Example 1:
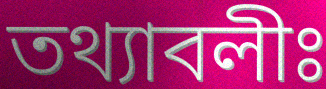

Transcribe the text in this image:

তথ্যাবলীঃ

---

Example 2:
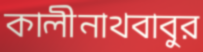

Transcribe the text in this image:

কালীনাথবাবুর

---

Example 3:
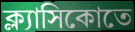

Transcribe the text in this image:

ক্ল্যাসিকোতে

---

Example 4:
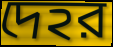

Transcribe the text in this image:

দেহর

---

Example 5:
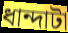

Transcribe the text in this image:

ধান্দাটা